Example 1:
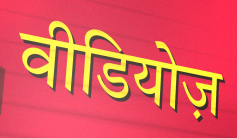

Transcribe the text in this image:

वीडियोज़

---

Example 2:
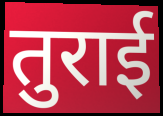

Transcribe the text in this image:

तुराई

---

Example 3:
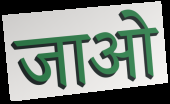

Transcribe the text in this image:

जाओ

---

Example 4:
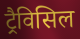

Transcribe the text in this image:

ट्रैविसिल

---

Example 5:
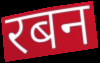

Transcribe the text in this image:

रबन